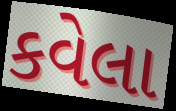
કવેલા